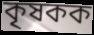
কৃষকক